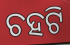
ଚହଟି